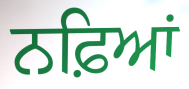
ਨਫ਼ਿਆਂ